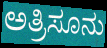
ಅತ್ರಿಸೂನು